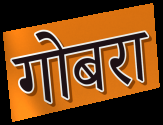
गोबरा